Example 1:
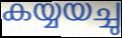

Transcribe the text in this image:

കയ്യയച്ചു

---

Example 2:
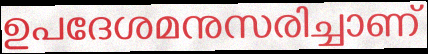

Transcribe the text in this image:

ഉപദേശമനുസരിച്ചാണ്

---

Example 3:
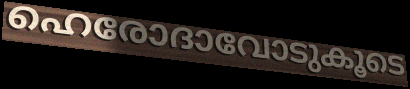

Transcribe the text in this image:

ഹെരോദാവോടുകൂടെ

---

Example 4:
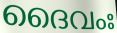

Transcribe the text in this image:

ദൈവംഃ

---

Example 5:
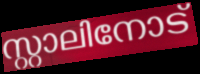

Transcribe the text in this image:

സ്റ്റാലിനോട്